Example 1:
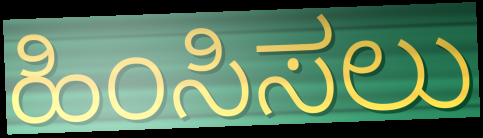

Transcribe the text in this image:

ಹಿಂಸಿಸಲು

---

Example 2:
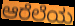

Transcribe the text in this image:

ಆರೆಲೆಯ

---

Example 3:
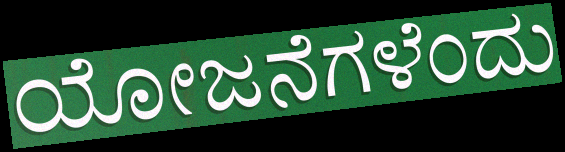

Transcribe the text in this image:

ಯೋಜನೆಗಳೆಂದು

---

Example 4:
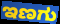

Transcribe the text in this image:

ಇಣಗು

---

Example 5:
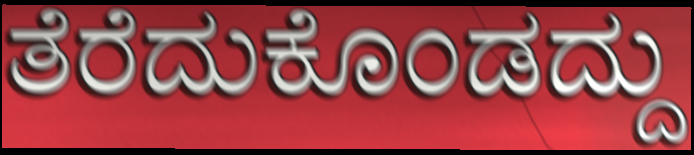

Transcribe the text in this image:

ತೆರೆದುಕೊಂಡದ್ದು